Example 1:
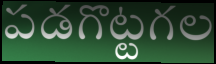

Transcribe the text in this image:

పడగొట్టగల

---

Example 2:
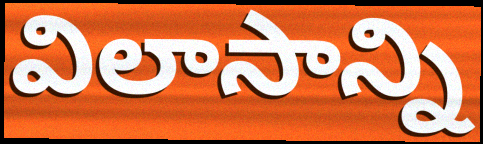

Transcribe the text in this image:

విలాసాన్ని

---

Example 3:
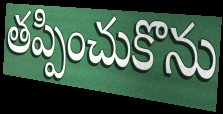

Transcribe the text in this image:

తప్పించుకొను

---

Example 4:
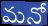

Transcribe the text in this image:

మనో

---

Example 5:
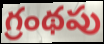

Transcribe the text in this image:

గ్రంథపు